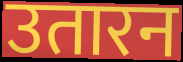
उतारन